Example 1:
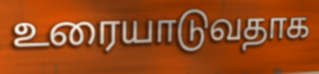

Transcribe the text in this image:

உரையாடுவதாக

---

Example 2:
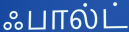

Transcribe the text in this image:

ஃபால்ட்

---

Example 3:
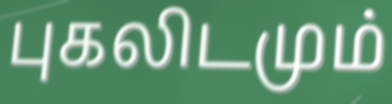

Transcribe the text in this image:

புகலிடமும்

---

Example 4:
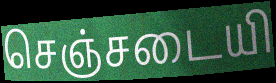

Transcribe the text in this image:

செஞ்சடையி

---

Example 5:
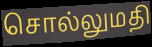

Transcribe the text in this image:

சொல்லுமதி